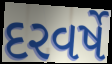
દરવર્ષે